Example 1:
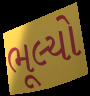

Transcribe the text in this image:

ભૂલ્‍યો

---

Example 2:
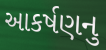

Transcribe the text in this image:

આકર્ષણનુ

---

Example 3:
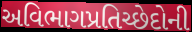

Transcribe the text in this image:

અવિભાગપ્રતિચ્છેદોની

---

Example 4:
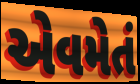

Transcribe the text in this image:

એવમેતં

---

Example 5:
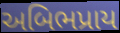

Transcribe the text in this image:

અબિભપ્રાય